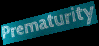
Prematurity